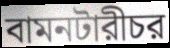
বামনটারীচর